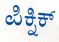
ಪಿಕ್ನಿಕ್